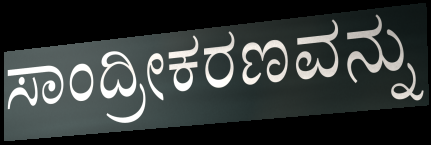
ಸಾಂದ್ರೀಕರಣವನ್ನು